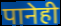
पानेही